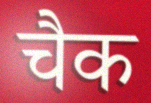
चैक